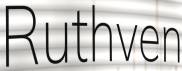
Ruthven